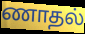
ணாதல்